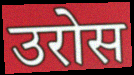
उरोस